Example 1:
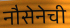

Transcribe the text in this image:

नौसेनेची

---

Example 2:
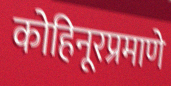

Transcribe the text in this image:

कोहिनूरप्रमाणे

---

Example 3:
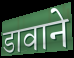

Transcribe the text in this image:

डावाने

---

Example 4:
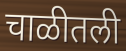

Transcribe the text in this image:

चाळीतली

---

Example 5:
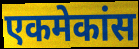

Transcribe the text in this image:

एकमेकांस